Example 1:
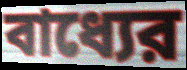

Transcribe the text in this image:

বাধ্যের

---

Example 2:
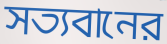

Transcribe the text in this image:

সত্যবানের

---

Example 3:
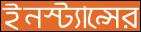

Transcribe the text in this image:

ইনস্ট্যান্সের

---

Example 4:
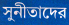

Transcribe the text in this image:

সুনীতাদের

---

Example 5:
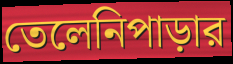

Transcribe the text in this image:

তেলেনিপাড়ার